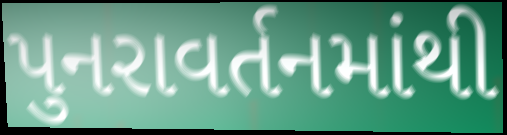
પુનરાવર્તનમાંથી